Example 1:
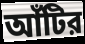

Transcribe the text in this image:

আঁটির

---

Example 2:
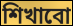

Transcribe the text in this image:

শিখাবো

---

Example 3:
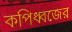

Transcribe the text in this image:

কপিধ্বজের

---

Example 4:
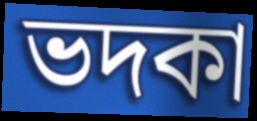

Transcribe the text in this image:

ভদকা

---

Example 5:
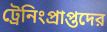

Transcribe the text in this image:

ট্রেনিংপ্রাপ্তদের